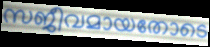
സജീവമായതോടെ